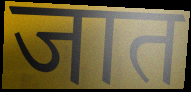
जात